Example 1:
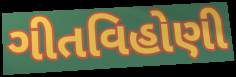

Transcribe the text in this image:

ગીતવિહોણી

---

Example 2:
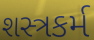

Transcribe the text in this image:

શસ્ત્રકર્મ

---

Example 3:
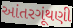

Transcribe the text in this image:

આંતરગૂંથણી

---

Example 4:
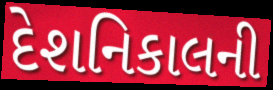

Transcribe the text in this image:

દેશનિકાલની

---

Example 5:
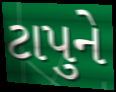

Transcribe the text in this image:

ટાપુને